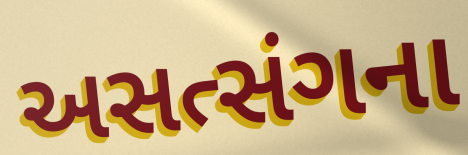
અસત્સંગના